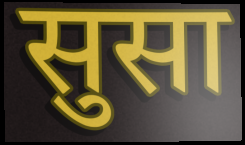
सुसा